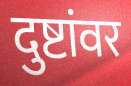
दुष्टांवर